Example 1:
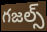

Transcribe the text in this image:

గజల్స్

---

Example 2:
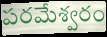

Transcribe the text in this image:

పరమేశ్వరం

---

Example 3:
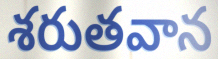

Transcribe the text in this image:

శరుతవాన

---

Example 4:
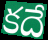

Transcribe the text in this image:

కదే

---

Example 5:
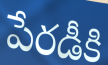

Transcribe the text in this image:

పేరడీకి